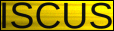
ISCUS